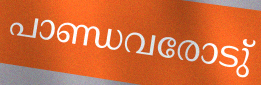
പാണ്ഡവരോടു്